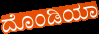
ದೊಂಡಿಯಾ